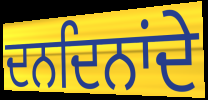
ਦਨਦਿਨਾਂਦੇ